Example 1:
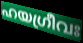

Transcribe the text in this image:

ഹയഗ്രീവഃ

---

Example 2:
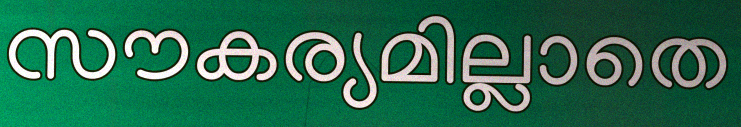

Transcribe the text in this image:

സൗകര്യമില്ലാതെ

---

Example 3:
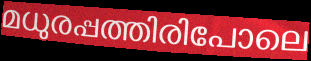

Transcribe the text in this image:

മധുരപ്പത്തിരിപോലെ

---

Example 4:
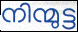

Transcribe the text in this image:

നിന്മുട്ട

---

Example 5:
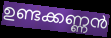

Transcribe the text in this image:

ഉണ്ടക്കണ്ണൻ